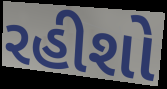
રહીશો